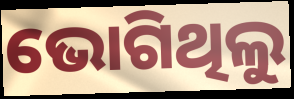
ଭୋଗିଥିଲୁ